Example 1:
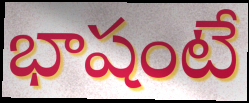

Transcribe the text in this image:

భాషంటే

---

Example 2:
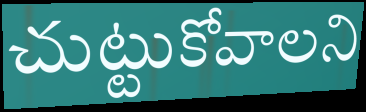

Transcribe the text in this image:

చుట్టుకోవాలని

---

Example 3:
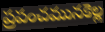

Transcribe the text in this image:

ప్రపంచమునకెల్ల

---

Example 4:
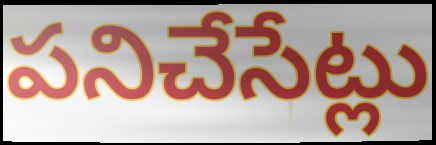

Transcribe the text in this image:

పనిచేసేట్లు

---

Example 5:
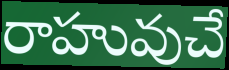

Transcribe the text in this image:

రాహువుచే